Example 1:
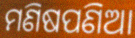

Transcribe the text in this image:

ମଣିଷପଣିଆ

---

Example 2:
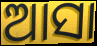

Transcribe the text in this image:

ଆସା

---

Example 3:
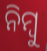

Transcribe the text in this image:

ନିମ୍ବୁ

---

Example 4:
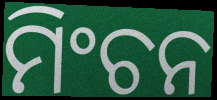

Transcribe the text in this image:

ମିଂଚନ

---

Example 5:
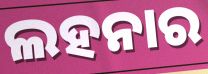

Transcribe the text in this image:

ଲହନାର